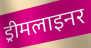
ड्रीमलाइनर